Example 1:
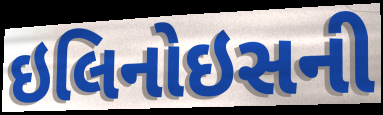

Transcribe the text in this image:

ઇલિનોઇસની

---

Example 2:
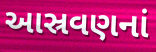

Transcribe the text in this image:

આસ્રવણનાં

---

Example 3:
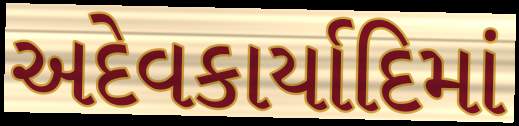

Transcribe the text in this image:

અદેવકાર્યાદિમાં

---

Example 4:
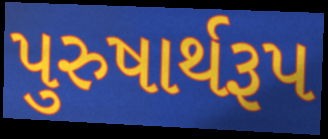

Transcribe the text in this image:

પુરુષાર્થરૂપ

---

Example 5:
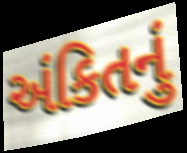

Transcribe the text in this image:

અંકિતનું